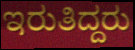
ಇರುತಿದ್ದರು